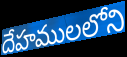
దేహములలోని